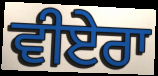
ਵੀਏਰਾ